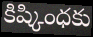
కిష్కింధకు